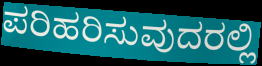
ಪರಿಹರಿಸುವುದರಲ್ಲಿ